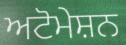
ਅਟੋਮੇਸ਼ਨ